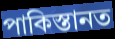
পাকিস্তানত